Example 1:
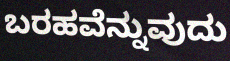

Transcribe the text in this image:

ಬರಹವೆನ್ನುವುದು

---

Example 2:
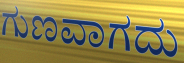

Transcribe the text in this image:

ಗುಣವಾಗದು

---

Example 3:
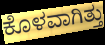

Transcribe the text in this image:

ಕೊಳವಾಗಿತ್ತು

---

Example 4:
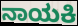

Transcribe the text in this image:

ನಾಯಕಿ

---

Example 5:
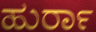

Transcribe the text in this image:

ಹುರ್ರಾ